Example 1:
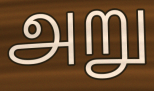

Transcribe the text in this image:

அறு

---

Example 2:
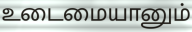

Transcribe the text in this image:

உடைமையானும்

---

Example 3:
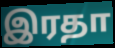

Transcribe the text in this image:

இரதா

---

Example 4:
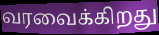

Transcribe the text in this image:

வரவைக்கிறது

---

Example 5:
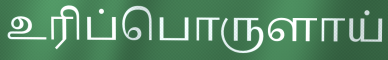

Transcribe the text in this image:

உரிப்பொருளாய்